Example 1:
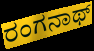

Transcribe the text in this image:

ರಂಗನಾಥ್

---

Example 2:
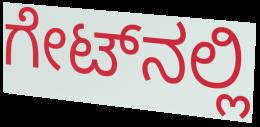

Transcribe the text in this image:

ಗೇಟ್‌ನಲ್ಲಿ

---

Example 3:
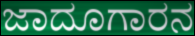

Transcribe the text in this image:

ಜಾದೂಗಾರನ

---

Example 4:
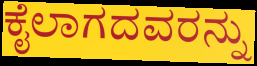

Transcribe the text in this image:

ಕೈಲಾಗದವರನ್ನು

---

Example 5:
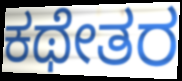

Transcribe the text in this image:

ಕಥೇತರ